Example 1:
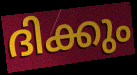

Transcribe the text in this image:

ദിക്കും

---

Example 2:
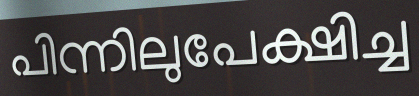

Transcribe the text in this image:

പിന്നിലുപേക്ഷിച്ച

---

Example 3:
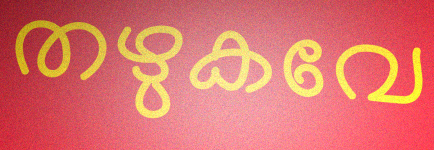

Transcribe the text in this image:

തഴുകവേ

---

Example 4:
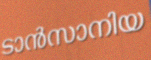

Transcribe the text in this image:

ടാൻസാനിയ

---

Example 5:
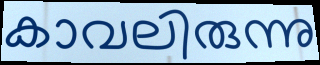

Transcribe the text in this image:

കാവലിരുന്നു